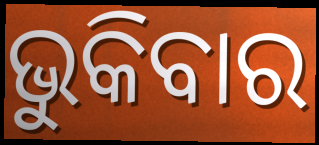
ଭୁକିବାର